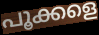
പൂക്കളെ